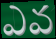
ఎవ